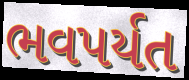
ભવપર્યત